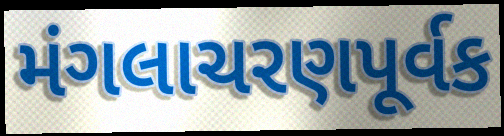
મંગલાચરણપૂર્વક